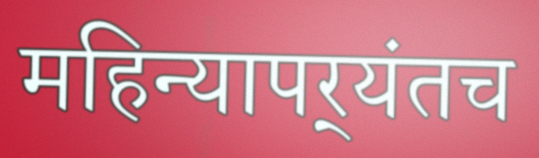
महिन्यापर्यंतच